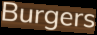
Burgers